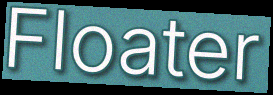
Floater